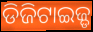
ଡିଜିଟାଇଜ୍ଡ